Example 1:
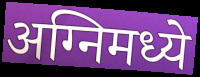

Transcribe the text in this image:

अग्निमध्ये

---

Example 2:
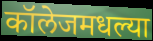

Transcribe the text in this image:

कॉलेजमधल्या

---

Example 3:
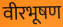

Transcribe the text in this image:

वीरभूषण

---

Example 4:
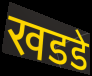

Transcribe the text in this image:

खडडे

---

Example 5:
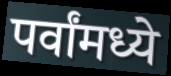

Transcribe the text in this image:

पर्वांमध्ये